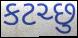
કટચ્છુ